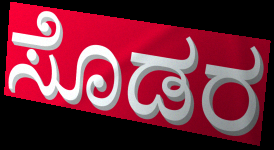
ಸೊಡರ